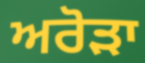
ਅਰੋੜਾ